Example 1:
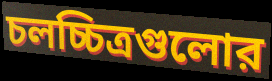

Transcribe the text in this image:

চলচ্চিত্রগুলোর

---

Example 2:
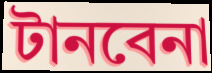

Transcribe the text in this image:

টানবেনা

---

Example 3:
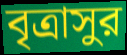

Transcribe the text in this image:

বৃত্রাসুর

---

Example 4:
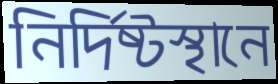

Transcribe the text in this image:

নির্দিষ্টস্থানে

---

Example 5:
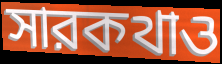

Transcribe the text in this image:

সারকথাও